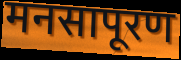
मनसापूरण